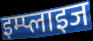
इम्प्लाइज